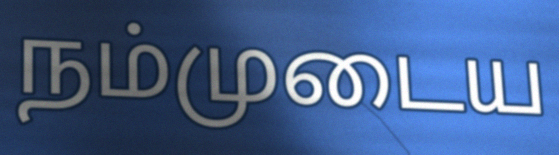
நம்முடைய